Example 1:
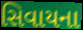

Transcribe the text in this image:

સિવાયના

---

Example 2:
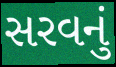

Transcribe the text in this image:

સરવનું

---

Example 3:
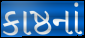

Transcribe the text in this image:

કાષ્ઠનાં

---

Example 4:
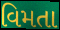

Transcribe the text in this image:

વિમતા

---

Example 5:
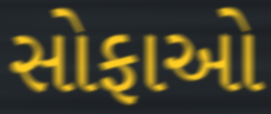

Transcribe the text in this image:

સોફાઓ